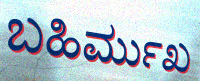
ಬಹಿರ್ಮುಖ